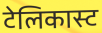
टेलिकास्ट